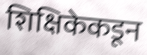
शिक्षिकेकडून